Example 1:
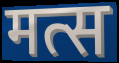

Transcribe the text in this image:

मत्स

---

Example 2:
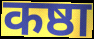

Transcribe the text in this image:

कष्ठा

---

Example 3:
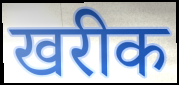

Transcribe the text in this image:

खरीक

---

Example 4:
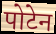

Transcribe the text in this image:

पोटेन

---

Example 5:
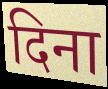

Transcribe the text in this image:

दिना